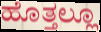
ಹೊತ್ತಲ್ಲೂ